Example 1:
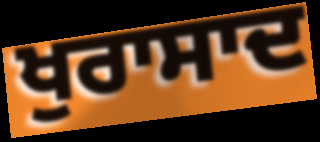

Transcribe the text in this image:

ਖੁਰਾਸਾਦ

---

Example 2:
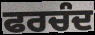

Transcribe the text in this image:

ਫਰਚੰਦ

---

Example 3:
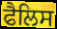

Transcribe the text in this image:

ਫੈਲਿਸ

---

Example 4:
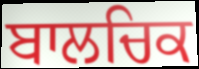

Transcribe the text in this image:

ਬਾਲਚਿਕ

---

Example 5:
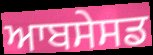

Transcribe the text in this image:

ਆਬਸੇਸਡ